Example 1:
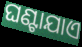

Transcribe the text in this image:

ଘଣ୍ଟାଯାଏ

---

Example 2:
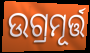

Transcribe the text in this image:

ଉଗ୍ରମୂର୍ତ୍ତ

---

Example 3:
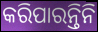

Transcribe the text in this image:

କରିପାରନ୍ତିନି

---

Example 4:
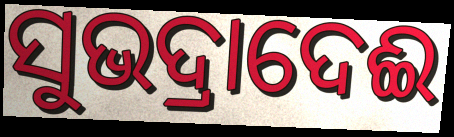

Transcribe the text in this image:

ସୁଭଦ୍ରାଦେଈ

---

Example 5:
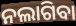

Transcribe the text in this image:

ନଲାଗିବା